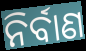
ନିର୍ବାଣ